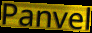
Panvel